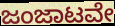
ಜಂಜಾಟವೇ